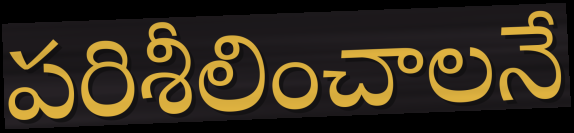
పరిశీలించాలనే